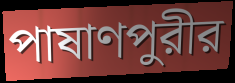
পাষাণপুরীর